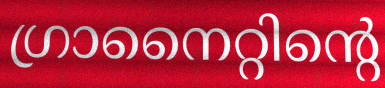
ഗ്രാനൈറ്റിന്റെ